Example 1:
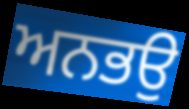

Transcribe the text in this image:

ਅਨਭਉ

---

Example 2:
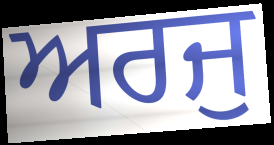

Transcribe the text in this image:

ਅਰਜੁ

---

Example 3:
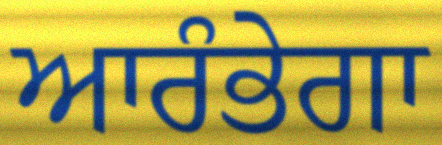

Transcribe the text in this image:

ਆਰੰਭੇਗਾ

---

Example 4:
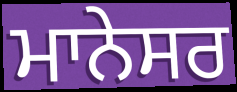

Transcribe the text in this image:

ਮਾਨੇਸਰ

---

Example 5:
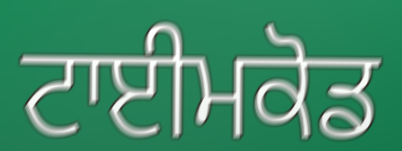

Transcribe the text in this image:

ਟਾਈਮਕੋਡ